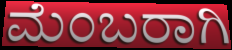
ಮೆಂಬರಾಗಿ